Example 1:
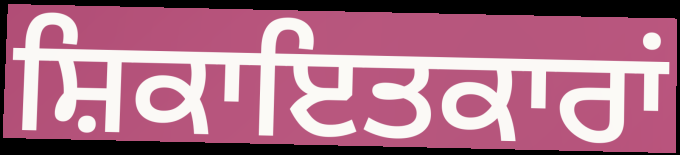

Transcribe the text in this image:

ਸ਼ਿਕਾਇਤਕਾਰਾਂ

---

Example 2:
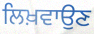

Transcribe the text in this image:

ਲਿਖ਼ਵਾਉਣ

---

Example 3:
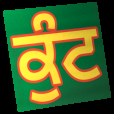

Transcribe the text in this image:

ਕੁੰਟ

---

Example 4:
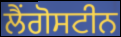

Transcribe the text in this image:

ਲੈਂਗੋਸਟੀਨ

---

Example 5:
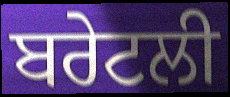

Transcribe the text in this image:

ਬਰੇਟਲੀ